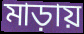
মাড়ায়